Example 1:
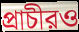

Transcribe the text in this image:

প্রাচীরও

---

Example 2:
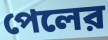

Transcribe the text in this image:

পেলের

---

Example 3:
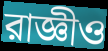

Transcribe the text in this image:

রাজ্ঞীও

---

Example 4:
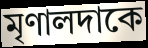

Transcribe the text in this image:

মৃণালদাকে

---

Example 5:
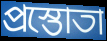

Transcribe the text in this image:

প্রস্তোতা